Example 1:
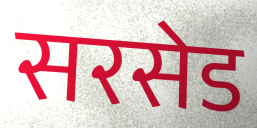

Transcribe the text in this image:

सरसेड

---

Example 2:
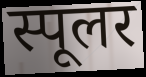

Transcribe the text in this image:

स्पूलर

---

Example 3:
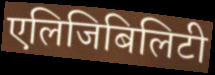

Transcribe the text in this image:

एलिजिबिलिटी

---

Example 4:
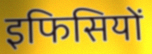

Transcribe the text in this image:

इफिसियों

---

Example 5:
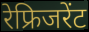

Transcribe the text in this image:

रेफ्रिजरेंट